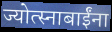
ज्योत्स्नाबाईंना